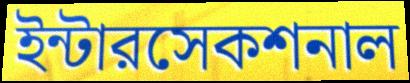
ইন্টারসেকশনাল